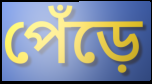
পেঁড়ে